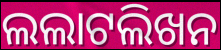
ଲଲାଟଲିଖନ